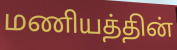
மணியத்தின்